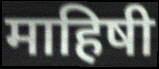
माहिषी